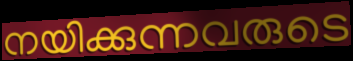
നയിക്കുന്നവരുടെ